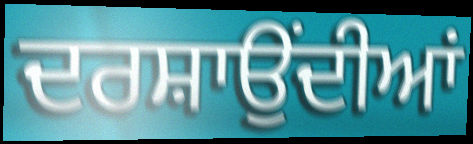
ਦਰਸ਼ਾਉਂਦੀਆਂ